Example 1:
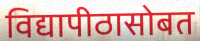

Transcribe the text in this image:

विद्यापीठासोबत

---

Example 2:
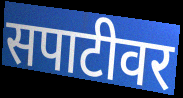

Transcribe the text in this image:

सपाटीवर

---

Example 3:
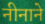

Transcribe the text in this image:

नीनाने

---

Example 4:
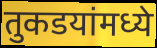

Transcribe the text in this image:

तुकडयांमध्ये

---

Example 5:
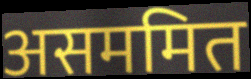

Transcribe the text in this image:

असममित